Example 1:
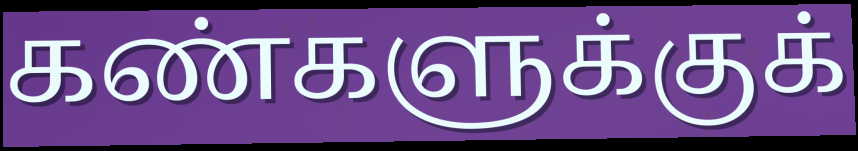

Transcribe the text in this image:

கண்களுக்குக்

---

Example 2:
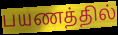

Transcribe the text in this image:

பயணத்தில்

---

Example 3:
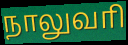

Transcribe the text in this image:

நாலுவரி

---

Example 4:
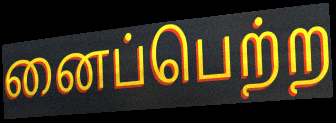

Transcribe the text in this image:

னைப்பெற்ற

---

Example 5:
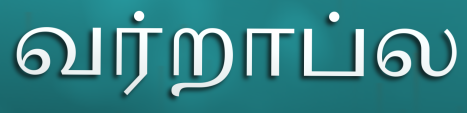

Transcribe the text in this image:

வர்றாப்ல